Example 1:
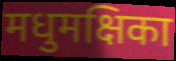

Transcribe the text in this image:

मधुमक्षिका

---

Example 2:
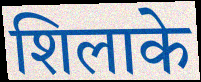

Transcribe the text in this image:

शिलाके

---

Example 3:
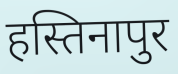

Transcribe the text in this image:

हस्तिनापुर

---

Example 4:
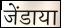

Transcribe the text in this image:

जेंडाया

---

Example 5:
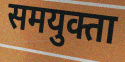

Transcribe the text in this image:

समयुक्ता